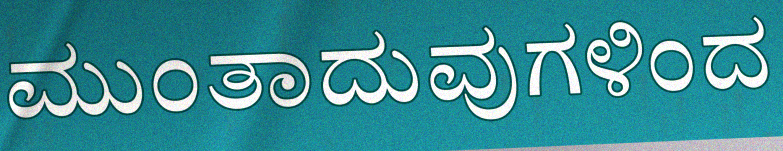
ಮುಂತಾದುವುಗಳಿಂದ